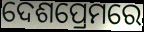
ଦେଶପ୍ରେମରେ